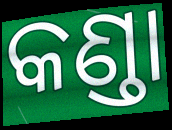
କଣ୍ଡା